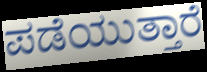
ಪಡೆಯುತ್ತಾರೆ